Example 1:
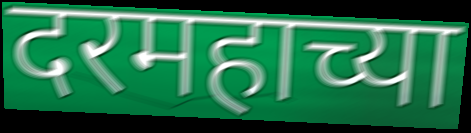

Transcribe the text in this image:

दरमहाच्या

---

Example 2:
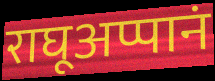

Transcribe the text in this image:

राघूअप्पानं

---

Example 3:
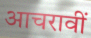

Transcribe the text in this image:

आचरावीं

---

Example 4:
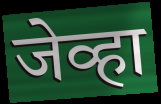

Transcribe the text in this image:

जेव्हा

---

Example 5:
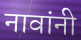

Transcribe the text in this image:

नावांनी